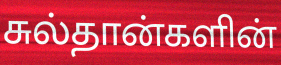
சுல்தான்களின்